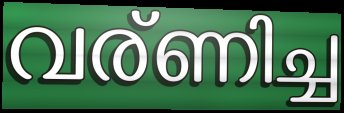
വര്ണിച്ച